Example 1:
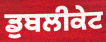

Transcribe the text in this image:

ਡੁਬਲੀਕੇਟ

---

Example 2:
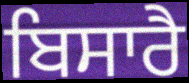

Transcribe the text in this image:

ਬਿਸਾਰੈ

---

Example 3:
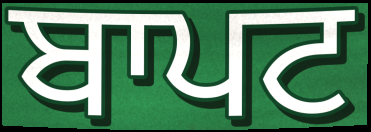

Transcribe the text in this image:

ਬਾਪਟ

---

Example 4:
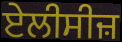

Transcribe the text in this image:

ਏਲੀਸੀਜ਼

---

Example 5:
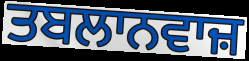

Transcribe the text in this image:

ਤਬਲਾਨਵਾਜ਼